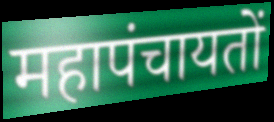
महापंचायतों